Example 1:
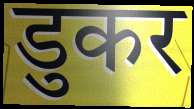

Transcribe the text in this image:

डुकर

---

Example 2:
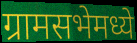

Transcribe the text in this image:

ग्रामसभेमध्ये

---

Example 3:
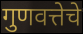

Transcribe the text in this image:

गुणवत्तेचे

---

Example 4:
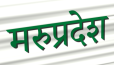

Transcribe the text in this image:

मरुप्रदेश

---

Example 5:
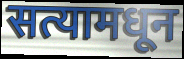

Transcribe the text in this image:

सत्यामधून